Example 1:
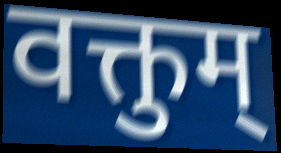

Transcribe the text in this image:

वक्तुम्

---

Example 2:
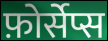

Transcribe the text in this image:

फ़ोर्सेप्स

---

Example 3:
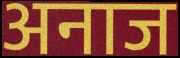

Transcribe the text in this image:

अनाज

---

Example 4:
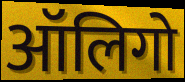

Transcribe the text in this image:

ऑलिगो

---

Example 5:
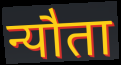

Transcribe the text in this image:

न्यौता